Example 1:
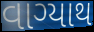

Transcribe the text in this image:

વાગ્યાથ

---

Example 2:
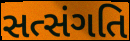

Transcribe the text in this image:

સત્સંગતિ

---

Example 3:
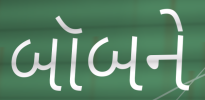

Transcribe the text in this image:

બૉબને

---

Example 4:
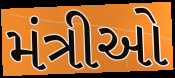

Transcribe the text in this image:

મંત્રીઓ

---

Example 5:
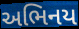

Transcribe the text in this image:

અભિનય